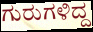
ಗುರುಗಳಿದ್ದ